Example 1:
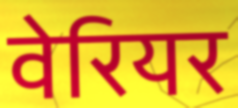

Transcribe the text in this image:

वेरियर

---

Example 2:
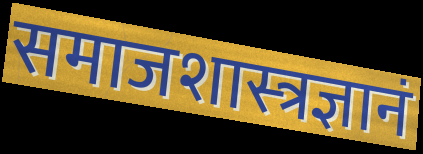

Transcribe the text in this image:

समाजशास्त्रज्ञानं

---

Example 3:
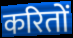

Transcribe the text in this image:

करितों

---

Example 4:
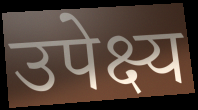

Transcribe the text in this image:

उपेक्ष्य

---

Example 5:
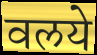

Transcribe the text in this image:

वलये